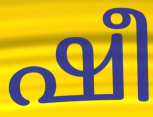
ഷീ